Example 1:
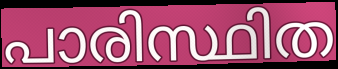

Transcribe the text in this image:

പാരിസ്ഥിത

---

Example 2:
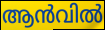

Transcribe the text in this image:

ആൻവിൽ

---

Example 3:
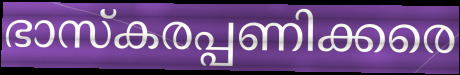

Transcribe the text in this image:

ഭാസ്കരപ്പണിക്കരെ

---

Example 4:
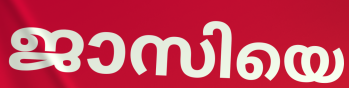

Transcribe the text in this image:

ജാസിയെ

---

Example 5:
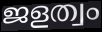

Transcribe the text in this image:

ജളത്വം